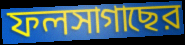
ফলসাগাছের